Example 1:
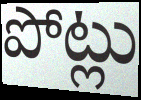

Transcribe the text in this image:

పోట్లు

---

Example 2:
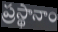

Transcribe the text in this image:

ప్రస్థానాం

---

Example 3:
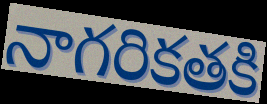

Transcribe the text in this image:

నాగరికతకి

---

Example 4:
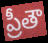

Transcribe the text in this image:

ప్రీతౌ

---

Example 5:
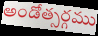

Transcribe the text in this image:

అండోత్సర్గము